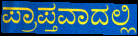
ಪ್ರಾಪ್ತವಾದಲ್ಲಿ